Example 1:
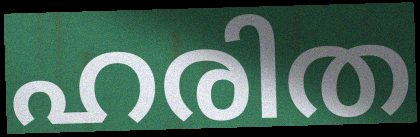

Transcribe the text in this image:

ഹരിത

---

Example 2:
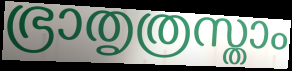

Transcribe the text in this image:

ഭ്രാതൃത്രസ്താം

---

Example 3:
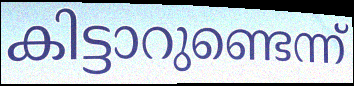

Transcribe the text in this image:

കിട്ടാറുണ്ടെന്ന്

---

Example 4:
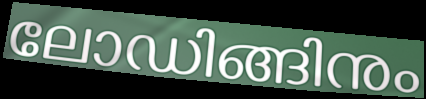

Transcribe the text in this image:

ലോഡിങ്ങിനും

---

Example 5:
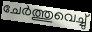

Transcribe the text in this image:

ചേർത്തുവെച്ചു്